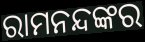
ରାମନନ୍ଦଙ୍କର